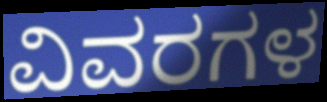
ವಿವರಗಳ